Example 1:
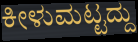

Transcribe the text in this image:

ಕೀಳುಮಟ್ಟದ್ದು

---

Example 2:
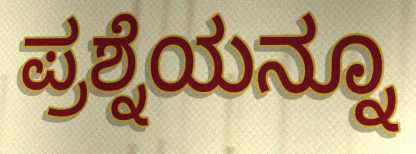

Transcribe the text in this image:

ಪ್ರಶ್ನೆಯನ್ನೂ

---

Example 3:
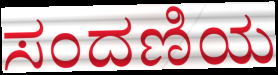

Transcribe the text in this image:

ಸಂದಣಿಯ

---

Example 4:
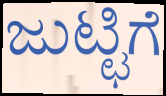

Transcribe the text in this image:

ಜುಟ್ಟಿಗೆ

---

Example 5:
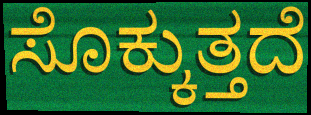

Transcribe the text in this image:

ಸೊಕ್ಕುತ್ತದೆ